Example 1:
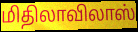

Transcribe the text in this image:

மிதிலாவிலாஸ்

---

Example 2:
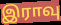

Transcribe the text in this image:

இராவு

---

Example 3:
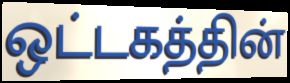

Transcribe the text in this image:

ஒட்டகத்தின்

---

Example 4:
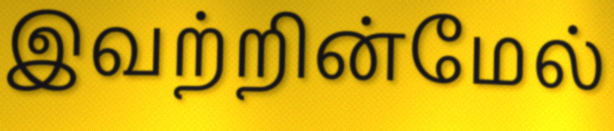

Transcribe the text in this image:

இவற்றின்மேல்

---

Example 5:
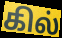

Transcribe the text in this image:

கில்